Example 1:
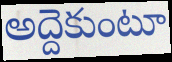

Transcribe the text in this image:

అద్దెకుంటూ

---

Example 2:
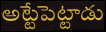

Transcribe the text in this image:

అట్టేపెట్టాడు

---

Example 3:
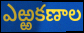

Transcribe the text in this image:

ఎఱ్ఱకణాల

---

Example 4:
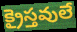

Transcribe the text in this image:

క్రైస్తవులే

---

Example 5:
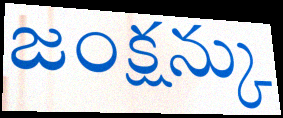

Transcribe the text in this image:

జంక్షన్కు